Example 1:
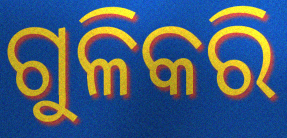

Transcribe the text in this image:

ଗୁଳିକରି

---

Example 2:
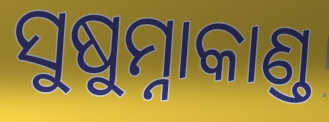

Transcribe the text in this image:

ସୁଷୁମ୍ନାକାଣ୍ଡ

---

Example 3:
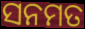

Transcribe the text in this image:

ସନମତ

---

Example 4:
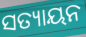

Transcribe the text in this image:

ସତ୍ୟାୟନ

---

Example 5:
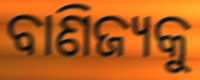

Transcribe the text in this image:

ବାଣିଜ୍ୟକୁ